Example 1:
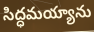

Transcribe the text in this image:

సిద్ధమయ్యాను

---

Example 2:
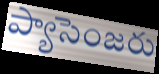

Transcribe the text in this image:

ప్యాసెంజరు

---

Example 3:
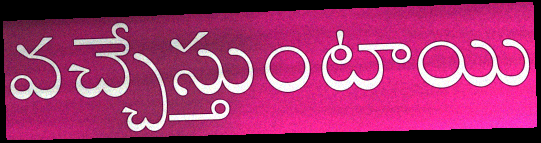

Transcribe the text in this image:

వచ్చేస్తుంటాయి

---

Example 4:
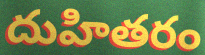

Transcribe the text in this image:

దుహితరం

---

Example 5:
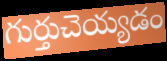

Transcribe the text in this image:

గుర్తుచెయ్యడం